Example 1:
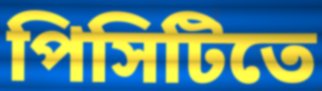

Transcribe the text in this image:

পিসিটিতে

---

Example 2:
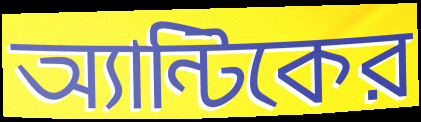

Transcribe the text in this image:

অ্যান্টিকের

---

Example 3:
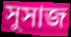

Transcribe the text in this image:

সুসাজ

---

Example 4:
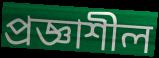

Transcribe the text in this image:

প্রজ্ঞাশীল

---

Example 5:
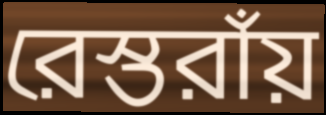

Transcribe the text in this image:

রেস্তরাঁয়